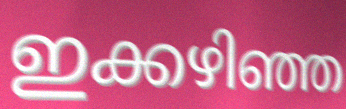
ഇക്കഴിഞ്ഞ